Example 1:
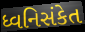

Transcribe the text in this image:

ધ્વનિસંકેત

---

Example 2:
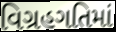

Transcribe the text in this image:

વિગ્રહગતિમાં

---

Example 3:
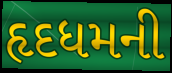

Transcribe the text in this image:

હૃદધમની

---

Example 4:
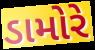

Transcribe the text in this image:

ડામોરે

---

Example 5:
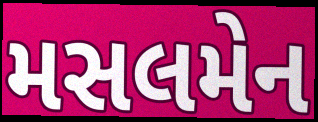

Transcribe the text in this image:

મસલમેન